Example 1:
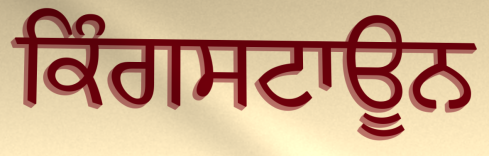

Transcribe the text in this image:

ਕਿੰਗਸਟਾਊਨ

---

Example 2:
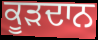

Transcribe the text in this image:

ਕੂੜਦਾਨ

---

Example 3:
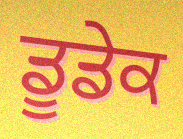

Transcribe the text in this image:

ਡੂਡੇਕ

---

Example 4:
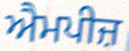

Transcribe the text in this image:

ਐਮਪੀਜ਼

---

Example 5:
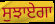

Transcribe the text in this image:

ਸੁਝਾਏਗਾ